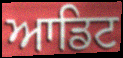
ਆਡਿਟ